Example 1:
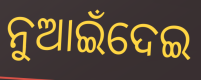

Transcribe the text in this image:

ନୁଆଇଁଦେଇ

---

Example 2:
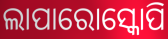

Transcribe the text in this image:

ଲାପାରୋସ୍କୋପି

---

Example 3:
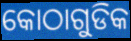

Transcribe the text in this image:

କୋଠାଗୁଡିକ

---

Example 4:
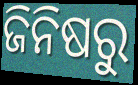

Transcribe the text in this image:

ଜିନିଷରୁ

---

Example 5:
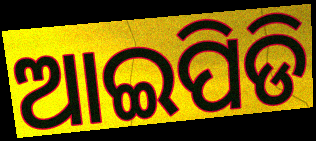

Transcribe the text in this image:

ଆଇପିଡି